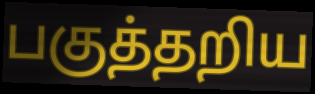
பகுத்தறிய